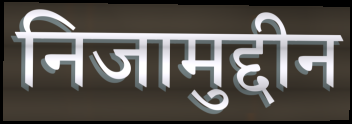
निजामुद्दीन